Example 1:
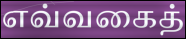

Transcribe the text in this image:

எவ்வகைத்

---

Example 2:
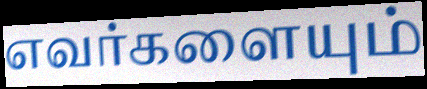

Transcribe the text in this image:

எவர்களையும்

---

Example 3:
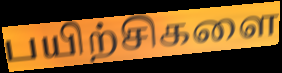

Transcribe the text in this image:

பயிற்சிகளை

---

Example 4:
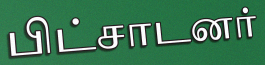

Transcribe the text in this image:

பிட்சாடனர்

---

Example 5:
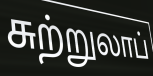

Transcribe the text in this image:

சுற்றுலாப்